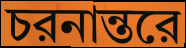
চরনান্তরে